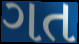
ગત